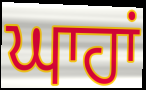
ਘਾਹਾਂ